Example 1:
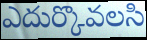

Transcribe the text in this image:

ఎదుర్కొవలసి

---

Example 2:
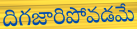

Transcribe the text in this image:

దిగజారిపోవడమే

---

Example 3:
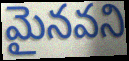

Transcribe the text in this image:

మైనవని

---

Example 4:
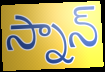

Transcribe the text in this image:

స్నాన్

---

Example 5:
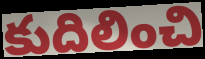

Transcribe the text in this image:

కుదిలించి